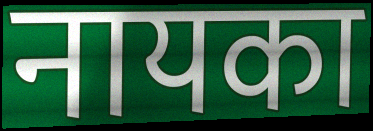
नायका